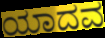
ಯಾದವ